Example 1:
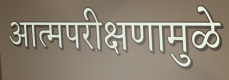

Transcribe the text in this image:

आत्मपरीक्षणामुळे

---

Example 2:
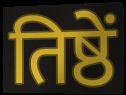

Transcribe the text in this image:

तिष्ठें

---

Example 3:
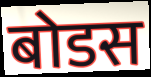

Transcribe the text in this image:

बोडस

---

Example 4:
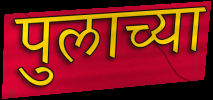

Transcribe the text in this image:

पुलाच्या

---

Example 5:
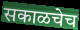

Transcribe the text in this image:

सकाळचेच